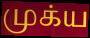
முக்ய